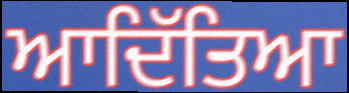
ਆਦਿੱਤਿਆ